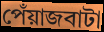
পেঁয়াজবাটা